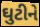
ઘુટીને